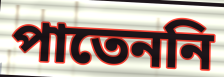
পাতেননি